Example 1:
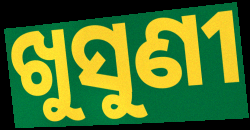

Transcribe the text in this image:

ଖୁସୁଣୀ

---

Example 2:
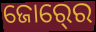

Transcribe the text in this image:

ଜୋର୍‍ରେ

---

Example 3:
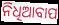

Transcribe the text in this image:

ନିଧିଆବାପ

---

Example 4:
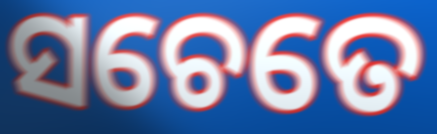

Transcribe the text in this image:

ସଚେତେ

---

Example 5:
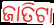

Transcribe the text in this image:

ଜାତିଟା